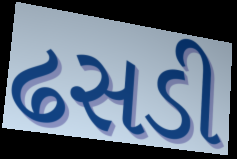
ઢસડી